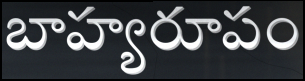
బాహ్యరూపం